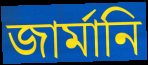
জার্মানি